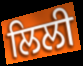
ਲਿਲੀ